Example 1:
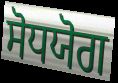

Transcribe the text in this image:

ਸੋਧਯੋਗ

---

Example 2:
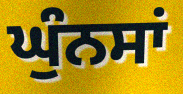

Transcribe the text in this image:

ਘੁੰਨਸਾਂ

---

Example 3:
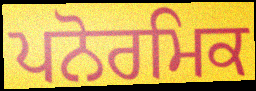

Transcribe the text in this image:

ਪਨੋਰਮਿਕ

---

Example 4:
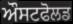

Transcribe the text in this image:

ਔਸਟਫੋਲਡ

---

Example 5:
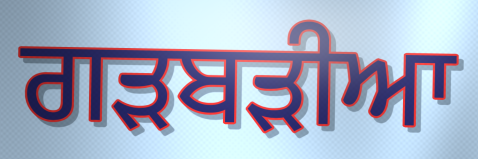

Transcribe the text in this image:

ਗੜਬੜੀਆ